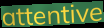
attentive